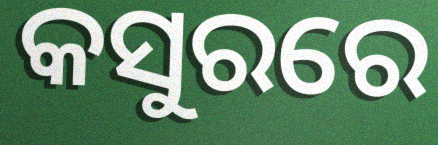
କସୁରରେ